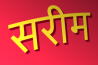
सरीम